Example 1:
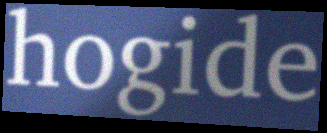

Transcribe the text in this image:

hogide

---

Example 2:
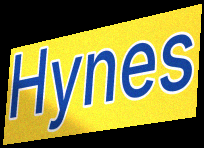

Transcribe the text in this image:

Hynes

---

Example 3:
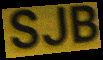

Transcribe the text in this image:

SJB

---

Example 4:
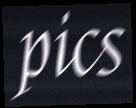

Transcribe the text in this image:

pics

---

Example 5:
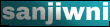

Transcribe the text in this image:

sanjiwni